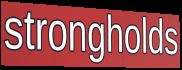
strongholds